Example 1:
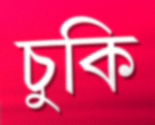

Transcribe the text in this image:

চুকি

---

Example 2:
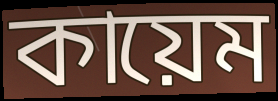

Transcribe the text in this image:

কায়েম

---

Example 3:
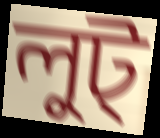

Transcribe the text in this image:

লুট্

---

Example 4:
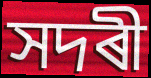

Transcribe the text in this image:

সদৰী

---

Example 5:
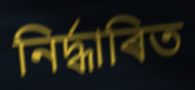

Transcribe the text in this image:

নিৰ্দ্ধাৰিত